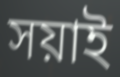
সয়াই